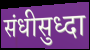
संधीसुध्दा